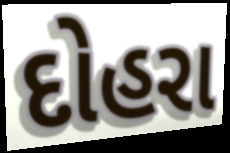
દોહરા